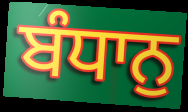
ਬੰਧਾਨੁ